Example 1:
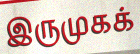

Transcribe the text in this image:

இருமுகக்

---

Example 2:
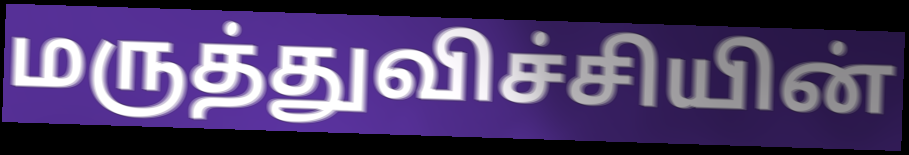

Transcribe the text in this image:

மருத்துவிச்சியின்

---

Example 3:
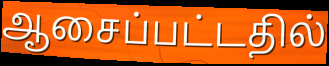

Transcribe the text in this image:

ஆசைப்பட்டதில்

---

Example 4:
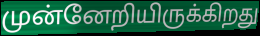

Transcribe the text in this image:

முன்னேறியிருக்கிறது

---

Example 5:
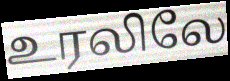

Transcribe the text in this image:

உரலிலே